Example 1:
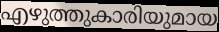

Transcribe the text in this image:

എഴുത്തുകാരിയുമായ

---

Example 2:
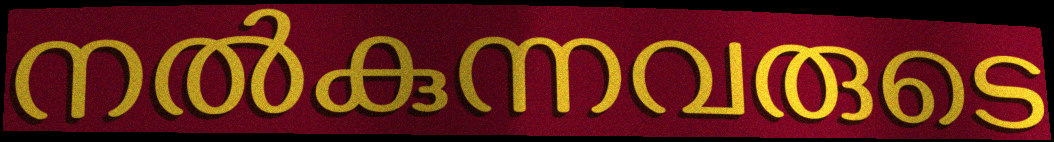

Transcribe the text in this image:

നൽകുന്നവരുടെ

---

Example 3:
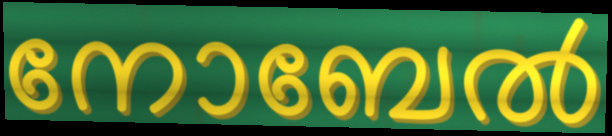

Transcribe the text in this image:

നോബേൽ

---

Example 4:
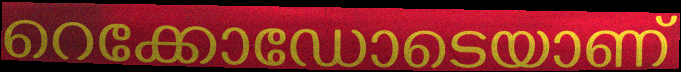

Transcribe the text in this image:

റെക്കോഡോടെയാണ്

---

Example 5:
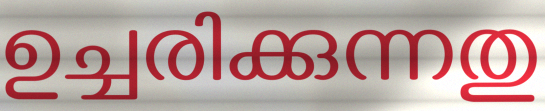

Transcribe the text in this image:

ഉച്ചരിക്കുന്നതു